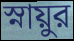
স্নায়ুর